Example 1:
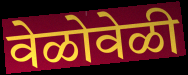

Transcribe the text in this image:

वेळोवेळी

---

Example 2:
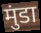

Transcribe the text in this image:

मुंडा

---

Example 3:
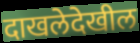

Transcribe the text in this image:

दाखलेदेखील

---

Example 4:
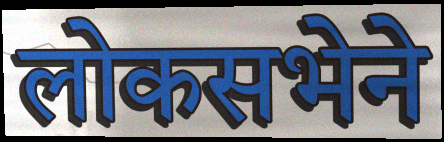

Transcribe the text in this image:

लोकसभेने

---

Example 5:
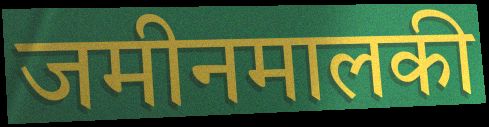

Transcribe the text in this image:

जमीनमालकी